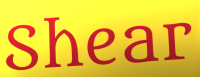
Shear